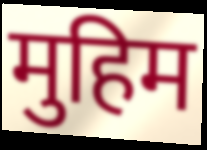
मुहिम